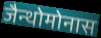
जैन्थोमोनास